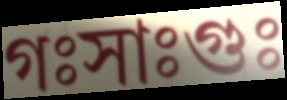
গঃসাঃগুঃ